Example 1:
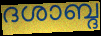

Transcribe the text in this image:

ദശാബ്ദ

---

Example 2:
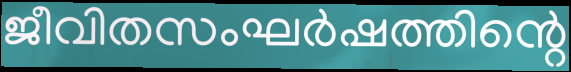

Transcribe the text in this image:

ജീവിതസംഘർഷത്തിന്റെ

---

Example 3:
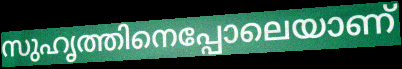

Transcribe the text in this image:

സുഹൃത്തിനെപ്പോലെയാണ്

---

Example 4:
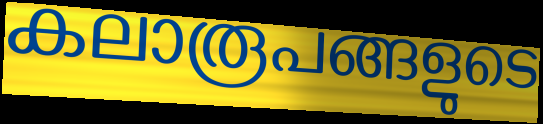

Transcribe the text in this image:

കലാരൂപങ്ങളുടെ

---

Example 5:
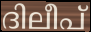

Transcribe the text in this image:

ദിലീപ്